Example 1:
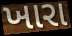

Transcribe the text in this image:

ખારા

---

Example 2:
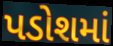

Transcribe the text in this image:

પડોશમાં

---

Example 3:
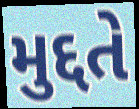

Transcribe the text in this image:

મુદ્દતે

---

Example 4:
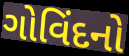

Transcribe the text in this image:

ગોવિંદનો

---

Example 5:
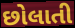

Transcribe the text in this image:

છોલાતી